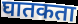
घातकता